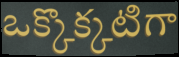
ఒక్కొక్కటిగా